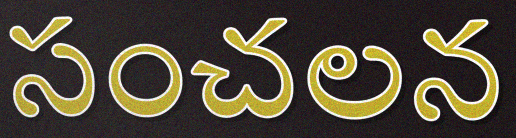
సంచలన